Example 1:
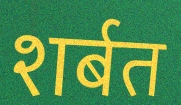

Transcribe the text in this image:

शर्बत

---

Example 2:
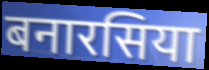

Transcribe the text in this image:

बनारसिया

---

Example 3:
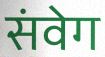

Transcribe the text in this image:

संवेग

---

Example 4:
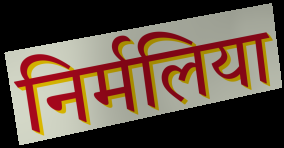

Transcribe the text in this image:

निर्मलिया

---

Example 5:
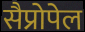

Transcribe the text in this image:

सैप्रोपेल